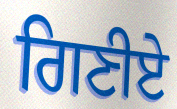
ਗਿਣੀਏ